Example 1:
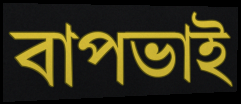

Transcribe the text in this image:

বাপভাই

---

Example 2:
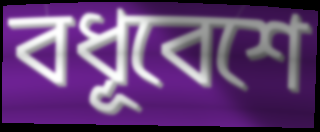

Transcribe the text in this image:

বধূবেশে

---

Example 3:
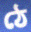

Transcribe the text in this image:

ঠে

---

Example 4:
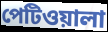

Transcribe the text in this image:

পেটিওয়ালা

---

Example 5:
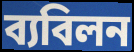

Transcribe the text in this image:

ব্যবিলন